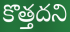
కొత్తదని